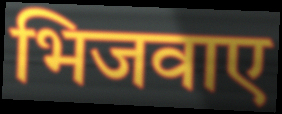
भिजवाए